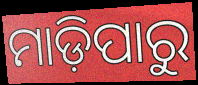
ମାଡ଼ିପାରୁ